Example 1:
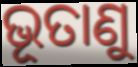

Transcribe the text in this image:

ଭୂତାଣୁ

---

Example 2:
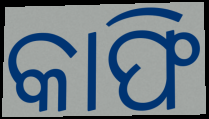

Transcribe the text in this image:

କାଫି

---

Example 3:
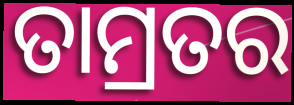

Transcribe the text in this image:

ତାମ୍ରତର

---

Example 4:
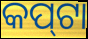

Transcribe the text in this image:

କପ୍‍ଟା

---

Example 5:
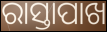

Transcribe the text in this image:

ରାସ୍ତାପାଖ